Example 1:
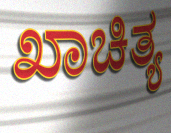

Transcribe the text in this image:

ಖಾಚಿತ್ಯ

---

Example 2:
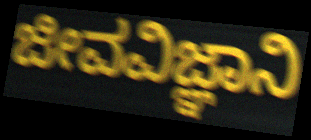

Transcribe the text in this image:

ಜೀವವಿಜ್ಞಾನಿ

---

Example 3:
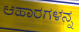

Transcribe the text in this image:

ಆಹಾರಗಳನ್ನ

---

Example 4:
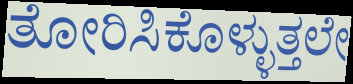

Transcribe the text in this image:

ತೋರಿಸಿಕೊಳ್ಳುತ್ತಲೇ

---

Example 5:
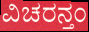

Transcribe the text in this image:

ವಿಚರನ್ತಂ